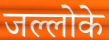
जल्लोके